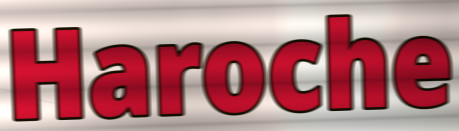
Haroche